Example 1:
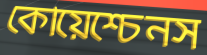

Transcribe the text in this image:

কোয়েশ্চেনস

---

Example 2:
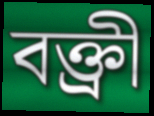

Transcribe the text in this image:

বক্ত্রী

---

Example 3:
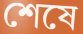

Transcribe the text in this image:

শেষে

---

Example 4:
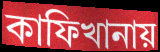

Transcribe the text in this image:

কাফিখানায়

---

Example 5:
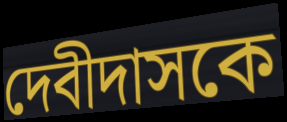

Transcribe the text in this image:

দেবীদাসকে